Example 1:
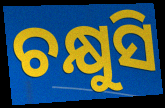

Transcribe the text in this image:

ଚକ୍ଷୁସି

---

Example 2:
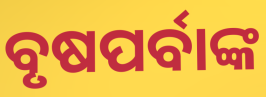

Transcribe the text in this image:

ବୃଷପର୍ବାଙ୍କ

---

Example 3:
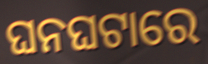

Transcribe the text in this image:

ଘନଘଟାରେ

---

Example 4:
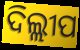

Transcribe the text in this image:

ଦିଲ୍ଲୀପ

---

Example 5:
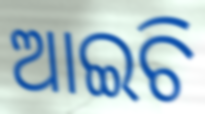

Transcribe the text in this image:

ଆଇଚି